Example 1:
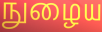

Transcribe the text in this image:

நுழைய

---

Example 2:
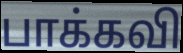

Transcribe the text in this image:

பாக்கவி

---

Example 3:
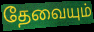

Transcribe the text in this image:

தேவையும்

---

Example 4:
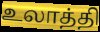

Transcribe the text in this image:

உலாத்தி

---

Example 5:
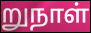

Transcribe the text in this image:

றுநாள்